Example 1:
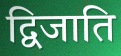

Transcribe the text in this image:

द्विजाति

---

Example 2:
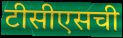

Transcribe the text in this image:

टीसीएसची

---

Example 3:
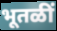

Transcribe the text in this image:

भूतळीं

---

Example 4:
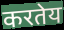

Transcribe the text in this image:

करतेय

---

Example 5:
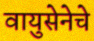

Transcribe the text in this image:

वायुसेनेचे